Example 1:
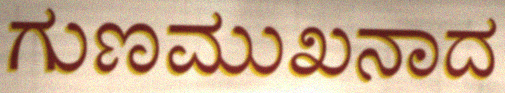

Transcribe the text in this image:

ಗುಣಮುಖನಾದ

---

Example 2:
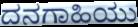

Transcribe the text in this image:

ದನಗಾಹಿಯು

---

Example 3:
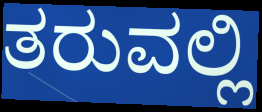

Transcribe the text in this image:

ತರುವಲ್ಲಿ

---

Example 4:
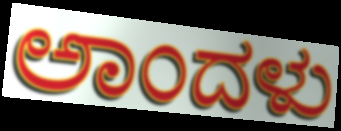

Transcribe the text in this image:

ಅಾಂದಳು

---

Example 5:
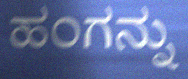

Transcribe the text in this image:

ಹಂಗನ್ನು